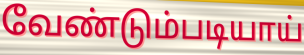
வேண்டும்படியாய்